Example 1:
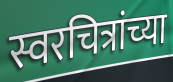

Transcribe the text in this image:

स्वरचित्रांच्या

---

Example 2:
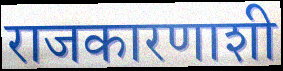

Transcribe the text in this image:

राजकारणाशी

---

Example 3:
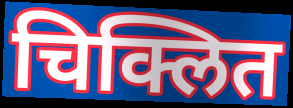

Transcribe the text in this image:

चिक्लित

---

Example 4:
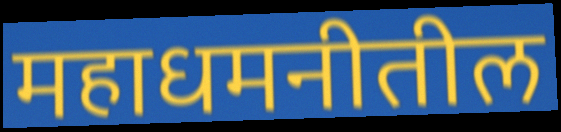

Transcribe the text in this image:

महाधमनीतील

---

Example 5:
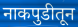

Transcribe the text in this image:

नाकपुडीतून